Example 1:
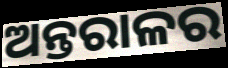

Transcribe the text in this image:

ଅନ୍ତରାଳର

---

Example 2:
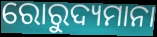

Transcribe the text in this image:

ରୋରୁଦ୍ୟମାନା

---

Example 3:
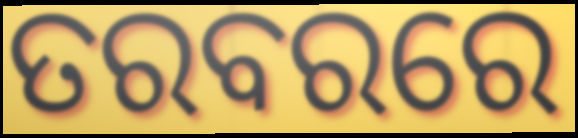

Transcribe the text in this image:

ତରବରରେ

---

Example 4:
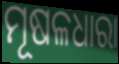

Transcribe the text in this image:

ମୂଷଳଧାରା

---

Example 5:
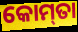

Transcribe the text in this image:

କୋମ୍‌ତା